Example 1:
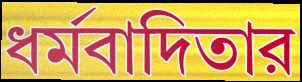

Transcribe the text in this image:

ধর্মবাদিতার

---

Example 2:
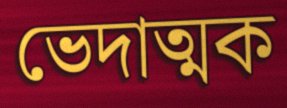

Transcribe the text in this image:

ভেদাত্মক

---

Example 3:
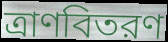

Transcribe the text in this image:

ত্রাণবিতরণ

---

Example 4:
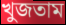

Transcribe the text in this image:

খুজতাম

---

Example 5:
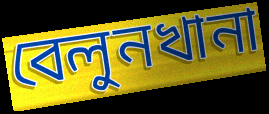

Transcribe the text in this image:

বেলুনখানা